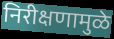
निरीक्षणामुळे